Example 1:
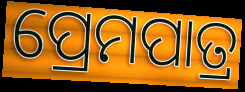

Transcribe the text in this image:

ପ୍ରେମପାତ୍ର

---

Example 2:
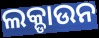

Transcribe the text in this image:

ଲକ୍ଡାଉନ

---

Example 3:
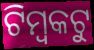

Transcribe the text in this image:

ଟିମ୍ବକଟୁ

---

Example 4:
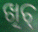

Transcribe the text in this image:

ଖିଚ୍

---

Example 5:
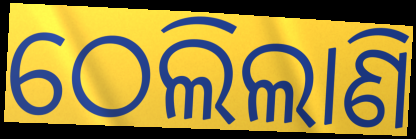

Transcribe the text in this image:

ଠେଲିଲାଣି